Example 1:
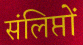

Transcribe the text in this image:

संलिप्तों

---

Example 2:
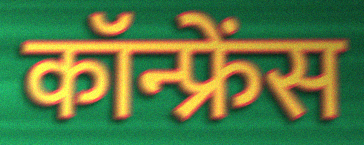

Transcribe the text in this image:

कॉन्फ्रेंस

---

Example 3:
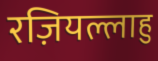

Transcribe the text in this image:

रज़ियल्लाहु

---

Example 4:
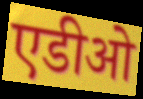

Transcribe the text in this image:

एडीओ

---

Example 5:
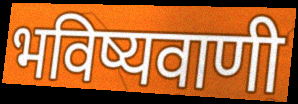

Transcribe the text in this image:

भविष्यवाणी